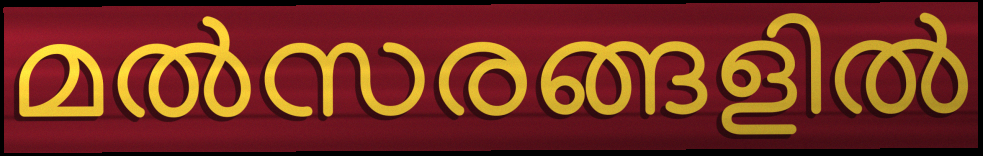
മൽസരങ്ങളിൽ